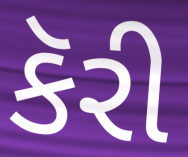
કૅરી